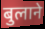
बुलाने